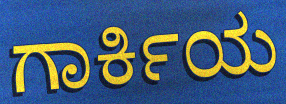
ಗಾರ್ಕಿಯ